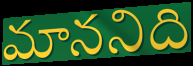
మాననిది